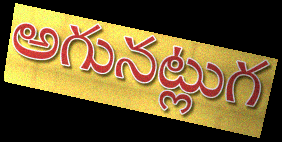
అగునట్లుగ